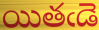
యితఁడె